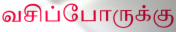
வசிப்போருக்கு